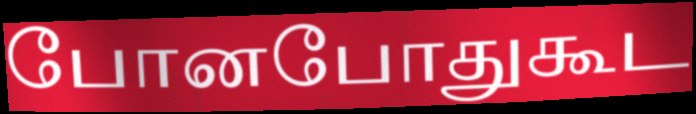
போனபோதுகூட